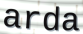
arda